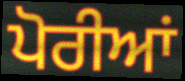
ਪੋਰੀਆਂ